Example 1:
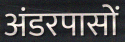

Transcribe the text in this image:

अंडरपासों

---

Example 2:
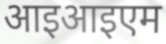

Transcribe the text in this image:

आइआइएम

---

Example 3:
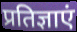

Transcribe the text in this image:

प्रतिज्ञाएं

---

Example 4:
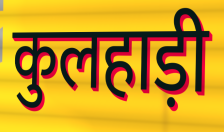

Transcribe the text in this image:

कुलहाड़ी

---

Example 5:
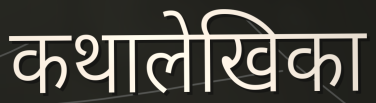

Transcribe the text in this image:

कथालेखिका